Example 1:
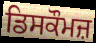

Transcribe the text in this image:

ਡਿਸਕੌਮਜ਼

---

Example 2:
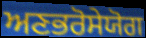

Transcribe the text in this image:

ਅਣਭਰੋਸੇਯੋਗ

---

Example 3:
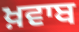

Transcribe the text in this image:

ਖ਼ਵਾਬ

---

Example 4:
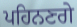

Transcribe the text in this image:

ਪਹਿਨਣਗੇ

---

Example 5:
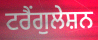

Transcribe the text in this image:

ਟਰੈਂਗੁਲੇਸ਼ਨ